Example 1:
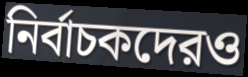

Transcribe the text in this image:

নির্বাচকদেরও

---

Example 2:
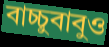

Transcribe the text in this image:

বাচ্চুবাবুও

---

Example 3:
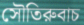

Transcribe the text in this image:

সৌতিরুবাচ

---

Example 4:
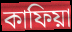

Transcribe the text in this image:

কাফিয়া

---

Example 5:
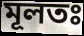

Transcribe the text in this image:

মূলতঃ